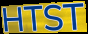
HTST